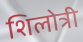
शिलोत्री